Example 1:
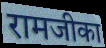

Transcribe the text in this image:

रामजीका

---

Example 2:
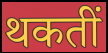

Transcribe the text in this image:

थकतीं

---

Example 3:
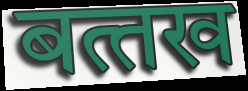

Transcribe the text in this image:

बत्‍तख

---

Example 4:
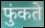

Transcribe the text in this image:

फुंकते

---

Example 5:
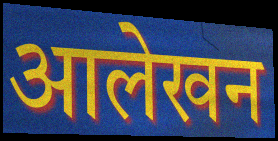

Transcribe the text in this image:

आलेखन